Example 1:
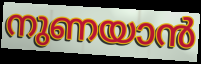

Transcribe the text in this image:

നുണയാൻ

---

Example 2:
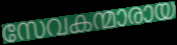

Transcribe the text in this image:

സേവകന്മാരായ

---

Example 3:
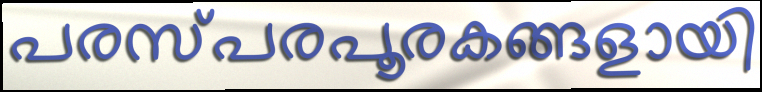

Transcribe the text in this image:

പരസ്പരപൂരകങ്ങളായി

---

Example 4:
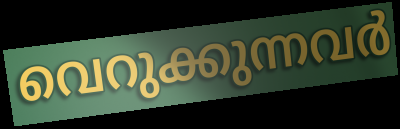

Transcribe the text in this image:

വെറുക്കുന്നവർ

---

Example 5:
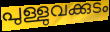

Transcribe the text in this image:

പുള്ളുവക്കുടം